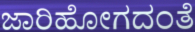
ಜಾರಿಹೋಗದಂತೆ